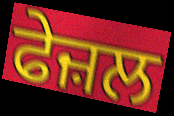
ਫੇਜ਼ਲ